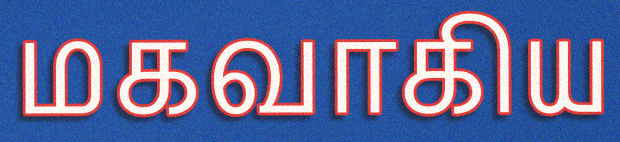
மகவாகிய